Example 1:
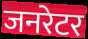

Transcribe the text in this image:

जनरेटर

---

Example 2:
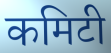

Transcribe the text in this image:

कमिटी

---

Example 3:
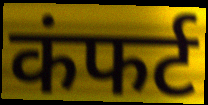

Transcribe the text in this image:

कंफर्ट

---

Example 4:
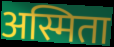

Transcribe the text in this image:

अस्मिता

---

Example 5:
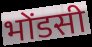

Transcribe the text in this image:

भोंडसी